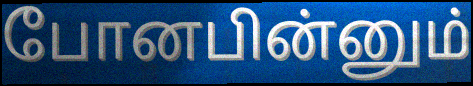
போனபின்னும்